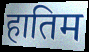
हातिम